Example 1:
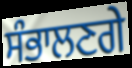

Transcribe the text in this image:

ਸੰਭਾਲਣਗੇ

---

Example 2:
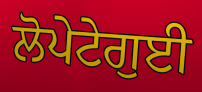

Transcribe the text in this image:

ਲੋਪੇਟੇਗੁਈ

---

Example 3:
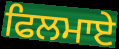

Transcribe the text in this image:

ਫਿਲਮਾਏ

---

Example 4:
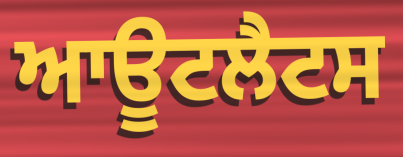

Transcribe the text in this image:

ਆਊਟਲੈਟਸ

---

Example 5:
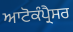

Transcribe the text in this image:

ਆਟੋਕੰਪ੍ਰੈਸਰ